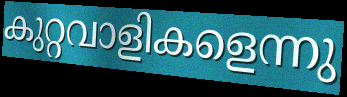
കുറ്റവാളികളെന്നു